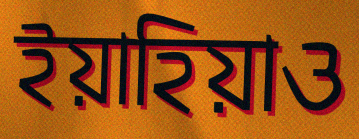
ইয়াহিয়াও